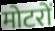
मोटरों